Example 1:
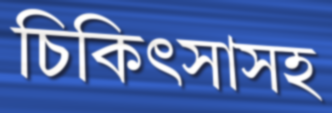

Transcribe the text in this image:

চিকিৎসাসহ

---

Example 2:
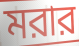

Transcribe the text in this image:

মরার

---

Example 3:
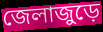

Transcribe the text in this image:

জেলাজুড়ে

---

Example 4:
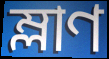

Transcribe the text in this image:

ম্লাণ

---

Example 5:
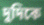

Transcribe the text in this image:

দুদিকে